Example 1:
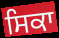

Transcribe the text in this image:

ਸਿਕਾ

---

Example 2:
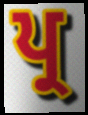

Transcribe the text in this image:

ਪ੍ਰ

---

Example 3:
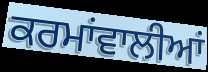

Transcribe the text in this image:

ਕਰਮਾਂਵਾਲੀਆਂ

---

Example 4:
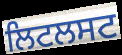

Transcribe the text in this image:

ਲਿਟਲਸਟ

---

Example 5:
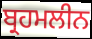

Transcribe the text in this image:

ਬ੍ਰਹਮਲੀਨ